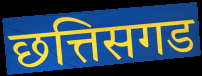
छत्तिसगड